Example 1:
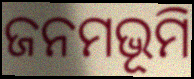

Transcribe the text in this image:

ଜନମଭୂମି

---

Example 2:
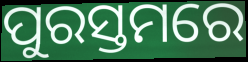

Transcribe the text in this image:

ପୁରସ୍ତମରେ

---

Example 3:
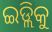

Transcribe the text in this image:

ଇଡ୍ଲିକୁ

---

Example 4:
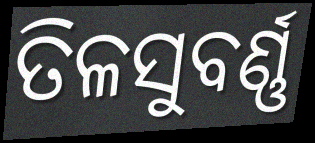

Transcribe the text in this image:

ତିଳସୁବର୍ଣ୍ଣ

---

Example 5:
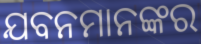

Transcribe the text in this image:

ଯବନମାନଙ୍କର